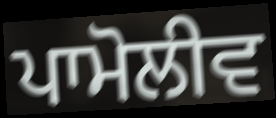
ਪਾਮੋਲੀਵ